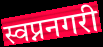
स्वप्ननगरी